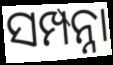
ସମ୍ପନ୍ନା